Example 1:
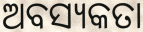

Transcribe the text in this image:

ଅବସ୍ୟକତା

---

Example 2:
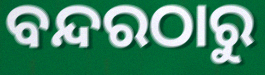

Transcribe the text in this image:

ବନ୍ଦରଠାରୁ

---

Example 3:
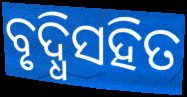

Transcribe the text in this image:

ବୃଦ୍ଧିସହିତ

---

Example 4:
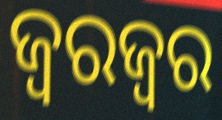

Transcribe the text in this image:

ଜ୍ୱରଜ୍ୱର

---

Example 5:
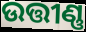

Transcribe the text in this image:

ଉତ୍ତୀଣ୍ଣ